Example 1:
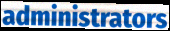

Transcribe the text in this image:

administrators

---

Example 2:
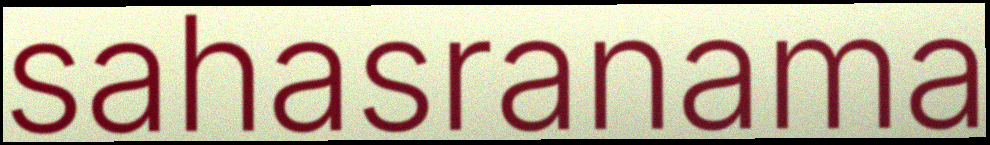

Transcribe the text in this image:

sahasranama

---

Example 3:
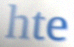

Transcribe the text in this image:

hte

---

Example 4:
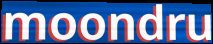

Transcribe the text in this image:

moondru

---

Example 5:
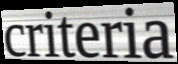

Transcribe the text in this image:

criteria